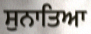
ਸੁਨਾਤਿਆ